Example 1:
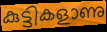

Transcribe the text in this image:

കുട്ടികളാണു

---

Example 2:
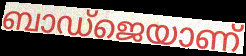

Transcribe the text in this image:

ബാഡ്ജെയാണ്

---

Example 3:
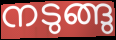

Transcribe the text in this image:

നടുങ്ങു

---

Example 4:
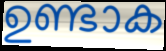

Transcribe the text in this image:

ഉണ്ടാക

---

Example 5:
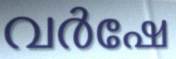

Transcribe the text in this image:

വർഷേ